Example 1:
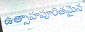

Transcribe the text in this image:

ఉత్సాహపూరితమైన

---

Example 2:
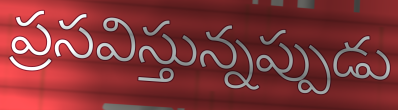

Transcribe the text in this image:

ప్రసవిస్తున్నప్పుడు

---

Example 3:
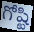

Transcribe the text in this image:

గోష్టి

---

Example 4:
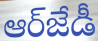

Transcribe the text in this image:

ఆర్‌జేడీ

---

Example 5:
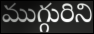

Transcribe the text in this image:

ముగ్గురిని